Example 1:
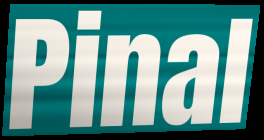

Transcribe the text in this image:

Pinal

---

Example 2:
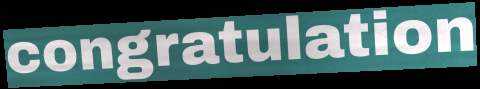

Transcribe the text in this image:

congratulation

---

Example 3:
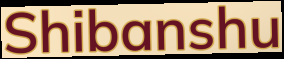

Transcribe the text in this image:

Shibanshu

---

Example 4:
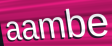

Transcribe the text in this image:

aambe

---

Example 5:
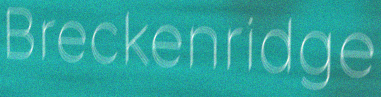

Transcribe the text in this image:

Breckenridge